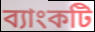
ব্যাংকটি